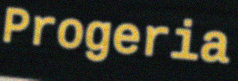
Progeria